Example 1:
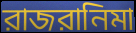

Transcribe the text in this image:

রাজরানিমা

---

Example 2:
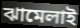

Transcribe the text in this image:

ঝামেলাই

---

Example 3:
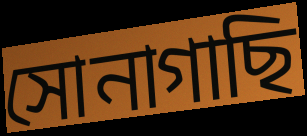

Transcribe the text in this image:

সোনাগাছি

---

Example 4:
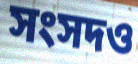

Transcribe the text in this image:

সংসদও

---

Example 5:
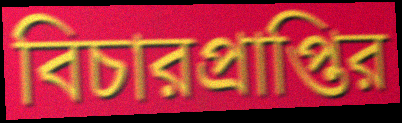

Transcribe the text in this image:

বিচারপ্রাপ্তির